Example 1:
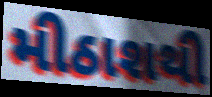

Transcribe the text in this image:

મીઠાશથી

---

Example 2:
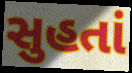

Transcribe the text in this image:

સુહતાં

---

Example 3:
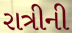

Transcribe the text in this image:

રાત્રીની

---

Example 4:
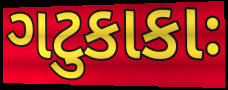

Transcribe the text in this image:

ગટુકાકાઃ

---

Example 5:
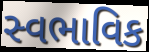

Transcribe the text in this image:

સ્વભાવિક